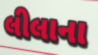
લીલાના